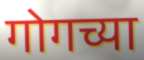
गोगच्या